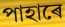
পাহাৰে